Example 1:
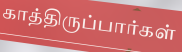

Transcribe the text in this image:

காத்திருப்பார்கள்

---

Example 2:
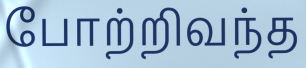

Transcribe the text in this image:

போற்றிவந்த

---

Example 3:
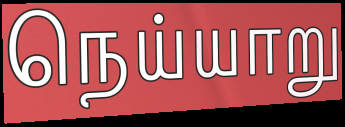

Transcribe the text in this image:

நெய்யாறு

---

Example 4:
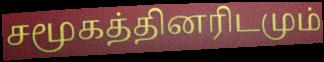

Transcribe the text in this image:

சமூகத்தினரிடமும்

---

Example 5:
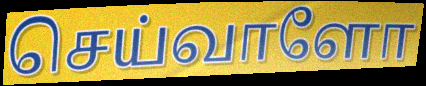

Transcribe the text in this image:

செய்வாளோ